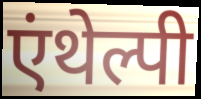
एंथेल्पी